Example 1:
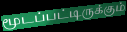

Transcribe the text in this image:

மூடப்பட்டிருக்கும்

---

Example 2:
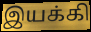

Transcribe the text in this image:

இயக்கி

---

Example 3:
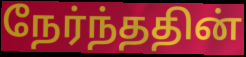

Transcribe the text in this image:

நேர்ந்ததின்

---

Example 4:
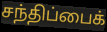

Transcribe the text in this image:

சந்திப்பைக்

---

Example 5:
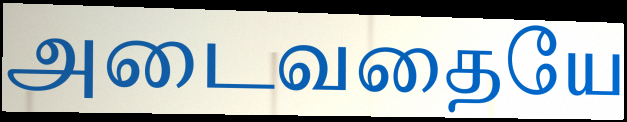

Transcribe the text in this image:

அடைவதையே